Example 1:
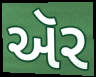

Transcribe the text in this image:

ઍર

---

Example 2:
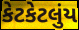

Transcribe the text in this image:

કેટકેટલુંય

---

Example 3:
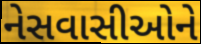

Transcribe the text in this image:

નેસવાસીઓને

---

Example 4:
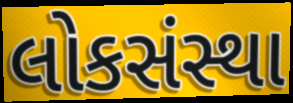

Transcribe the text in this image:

લોકસંસ્થા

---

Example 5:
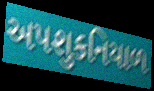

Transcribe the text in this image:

અપશુકનિયાળ